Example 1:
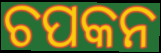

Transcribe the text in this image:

ଚପକନ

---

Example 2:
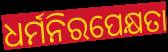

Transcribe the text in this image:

ଧର୍ମନିରପେକ୍ଷତା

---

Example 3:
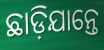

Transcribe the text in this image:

ଛାଡ଼ିଯାନ୍ତେ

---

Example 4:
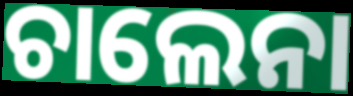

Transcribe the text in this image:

ଚାଲେନା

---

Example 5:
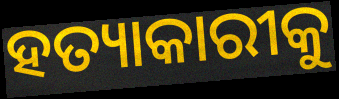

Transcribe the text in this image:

ହତ୍ୟାକାରୀକୁ